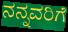
ನನ್ನವರಿಗೆ